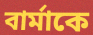
বার্মাকে